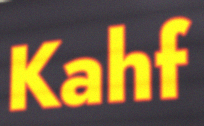
Kahf